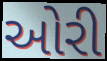
ઓરી